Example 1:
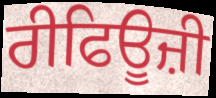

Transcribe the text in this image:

ਰੀਫਿਊਜ਼ੀ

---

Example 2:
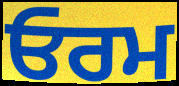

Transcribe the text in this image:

ਓਰਮ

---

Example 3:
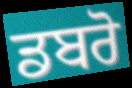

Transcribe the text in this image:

ਡਬਰੋ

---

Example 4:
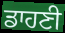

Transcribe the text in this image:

ਡਾਹਣੀ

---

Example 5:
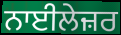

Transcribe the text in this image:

ਨਾਈਲੇਜ਼ਰ